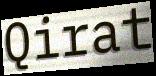
Qirat